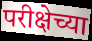
परीक्षेच्या